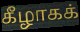
கீழாகக்